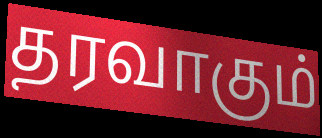
தரவாகும்